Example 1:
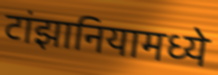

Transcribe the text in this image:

टांझानियामध्ये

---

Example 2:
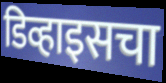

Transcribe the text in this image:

डिव्हाइसचा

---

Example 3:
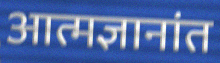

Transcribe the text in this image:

आत्मज्ञानांत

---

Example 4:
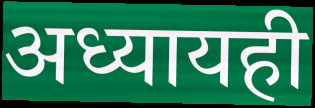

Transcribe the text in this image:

अध्यायही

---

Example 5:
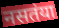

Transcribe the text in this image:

नसतंया